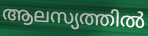
ആലസ്യത്തിൽ